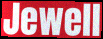
Jewell